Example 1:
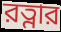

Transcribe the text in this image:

রত্নার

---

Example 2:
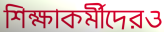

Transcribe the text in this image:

শিক্ষাকর্মীদেরও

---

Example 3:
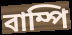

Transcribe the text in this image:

বাম্পি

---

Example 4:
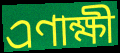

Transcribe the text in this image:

এণাক্ষী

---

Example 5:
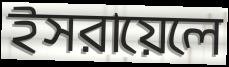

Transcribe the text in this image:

ইসরায়েলে